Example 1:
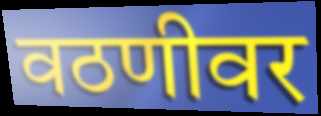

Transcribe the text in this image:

वठणीवर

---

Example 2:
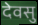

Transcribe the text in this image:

देवसु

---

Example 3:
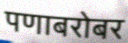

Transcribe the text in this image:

पणाबरोबर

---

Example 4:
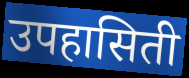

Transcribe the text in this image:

उपहासिती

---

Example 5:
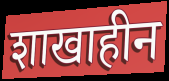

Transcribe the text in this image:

शाखाहीन